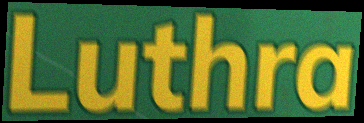
Luthra